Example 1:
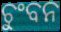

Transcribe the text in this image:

ଚୁଂବନ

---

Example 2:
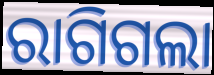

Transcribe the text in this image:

ରାଗିଗଲା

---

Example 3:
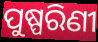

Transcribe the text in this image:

ପୁଷ୍ପରିଣୀ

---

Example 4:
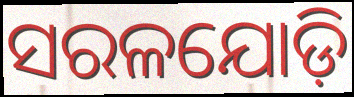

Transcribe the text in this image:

ସରଳଯୋଡ଼ି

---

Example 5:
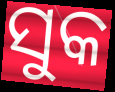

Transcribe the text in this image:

ସୁକ